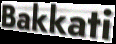
Bakkati